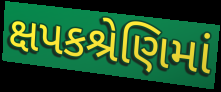
ક્ષપકશ્રેણિમાં